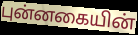
புன்னகையின்